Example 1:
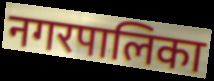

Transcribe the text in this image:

नगरपालिका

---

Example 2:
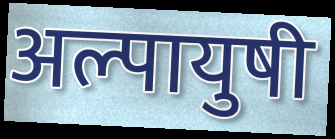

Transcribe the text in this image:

अल्पायुषी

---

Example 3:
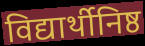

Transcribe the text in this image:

विद्यार्थीनिष्ठ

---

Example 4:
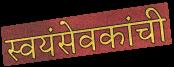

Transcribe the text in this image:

स्वयंसेवकांची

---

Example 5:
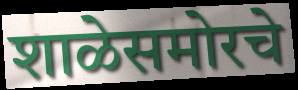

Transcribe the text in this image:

शाळेसमोरचे